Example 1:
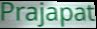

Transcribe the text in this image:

Prajapat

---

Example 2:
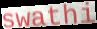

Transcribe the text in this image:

swathi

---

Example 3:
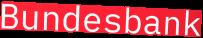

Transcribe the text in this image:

Bundesbank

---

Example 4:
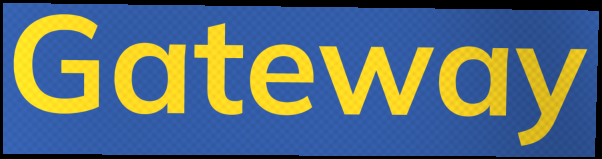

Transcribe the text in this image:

Gateway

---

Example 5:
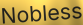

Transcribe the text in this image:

Nobless